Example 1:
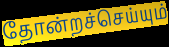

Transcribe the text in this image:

தோன்றச்செய்யும்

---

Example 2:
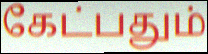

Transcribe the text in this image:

கேட்பதும்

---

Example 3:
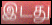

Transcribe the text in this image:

இடது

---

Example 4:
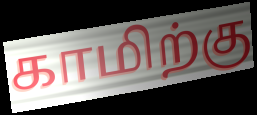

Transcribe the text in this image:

காமிற்கு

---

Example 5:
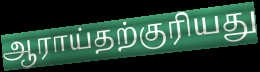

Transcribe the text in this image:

ஆராய்தற்குரியது